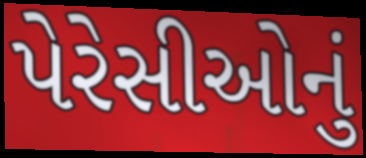
પેરેસીઓનું